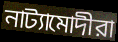
নাট্যামোদীরা